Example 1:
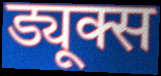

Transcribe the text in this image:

ड्यूक्स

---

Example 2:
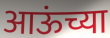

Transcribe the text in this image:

आऊंच्या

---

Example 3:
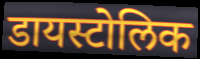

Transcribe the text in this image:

डायस्टोलिक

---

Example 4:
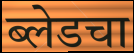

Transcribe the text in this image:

ब्लेडचा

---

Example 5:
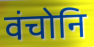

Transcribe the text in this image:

वंचोनि